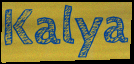
Kalya